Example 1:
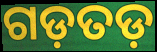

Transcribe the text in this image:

ଗଡ଼ତଡ଼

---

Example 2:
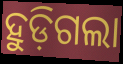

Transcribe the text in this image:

ହୁଡ଼ିଗଲା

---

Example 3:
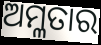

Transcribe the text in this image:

ଅମ୍ଳତାର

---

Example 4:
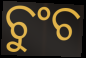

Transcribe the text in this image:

ଚୁଂଚ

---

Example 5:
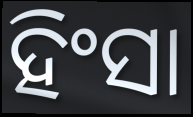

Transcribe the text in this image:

ହିଂସା